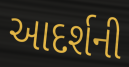
આદર્શની